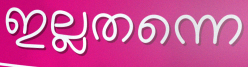
ഇല്ലതന്നെ